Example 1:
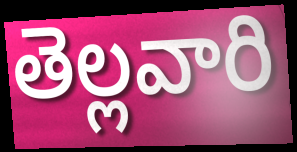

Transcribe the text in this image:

తెల్లవారి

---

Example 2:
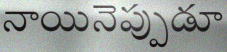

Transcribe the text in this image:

నాయినెప్పుడూ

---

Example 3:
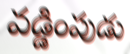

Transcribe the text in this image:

వడ్డింపుడు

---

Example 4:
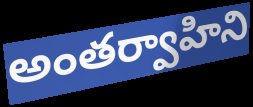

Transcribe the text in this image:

అంతర్వాహిని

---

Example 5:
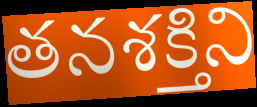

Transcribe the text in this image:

తనశక్తిని